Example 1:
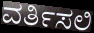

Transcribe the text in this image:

ವರ್ತಿಸಲಿ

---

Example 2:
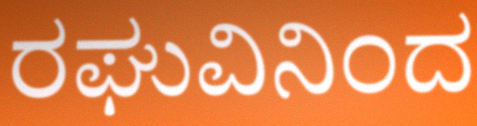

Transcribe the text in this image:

ರಘುವಿನಿಂದ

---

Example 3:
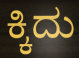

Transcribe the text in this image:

ಕ್ಕಿದು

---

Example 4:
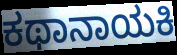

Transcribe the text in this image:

ಕಥಾನಾಯಕಿ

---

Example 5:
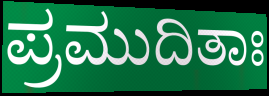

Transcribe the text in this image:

ಪ್ರಮುದಿತಾಃ